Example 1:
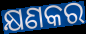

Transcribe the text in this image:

କ୍ଷଣକର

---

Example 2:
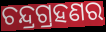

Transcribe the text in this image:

ଚନ୍ଦ୍ରଗ୍ରହଣର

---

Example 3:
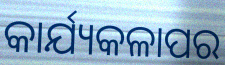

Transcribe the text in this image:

କାର୍ଯ୍ୟକଳାପର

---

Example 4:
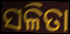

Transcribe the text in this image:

ସଳିତା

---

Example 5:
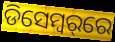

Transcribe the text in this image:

ଡିସେମ୍ବର୍‌ରେ